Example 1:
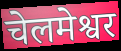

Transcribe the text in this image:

चेलमेश्वर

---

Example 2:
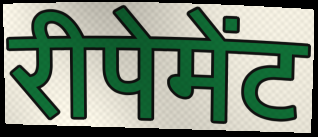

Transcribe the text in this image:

रीपेमेंट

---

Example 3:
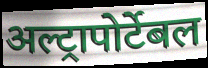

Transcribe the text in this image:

अल्ट्रापोर्टेबल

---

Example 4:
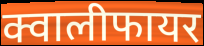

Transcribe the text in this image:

क्वालीफायर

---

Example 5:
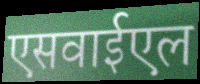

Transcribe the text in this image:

एसवाईएल